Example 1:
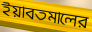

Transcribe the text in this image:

ইয়াবতমালের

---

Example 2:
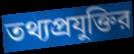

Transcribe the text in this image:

তথ্যপ্রযুক্তির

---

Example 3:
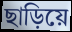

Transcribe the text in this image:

ছাড়িয়ে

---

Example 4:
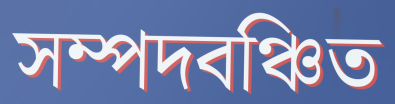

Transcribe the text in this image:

সম্পদবঞ্চিত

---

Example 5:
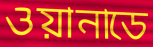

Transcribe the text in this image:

ওয়ানাডে